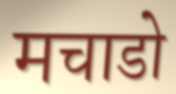
मचाडो